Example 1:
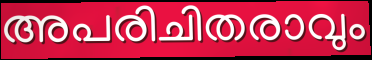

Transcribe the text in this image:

അപരിചിതരാവും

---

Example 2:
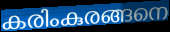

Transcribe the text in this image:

കരിംകുരങ്ങനെ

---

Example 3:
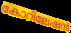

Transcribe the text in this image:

കോറിലേഷൻ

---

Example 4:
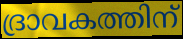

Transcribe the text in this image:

ദ്രാവകത്തിന്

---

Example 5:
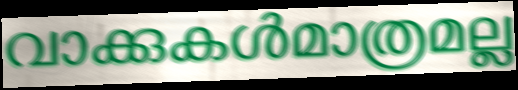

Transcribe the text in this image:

വാക്കുകൾമാത്രമല്ല